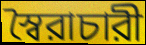
স্বৈরাচারী